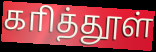
கரித்தூள்